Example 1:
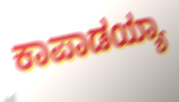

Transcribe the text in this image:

ಕಾಪಾಡಯ್ಯಾ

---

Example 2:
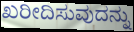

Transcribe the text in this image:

ಖರೀದಿಸುವುದನ್ನು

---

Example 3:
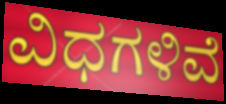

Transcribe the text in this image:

ವಿಧಗಳಿವೆ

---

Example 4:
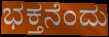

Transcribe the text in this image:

ಭಕ್ತನೆಂದು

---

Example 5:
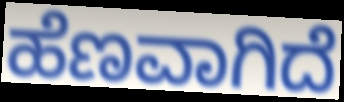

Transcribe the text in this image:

ಹೆಣವಾಗಿದೆ